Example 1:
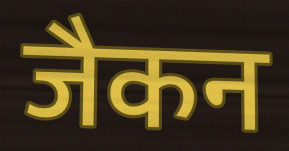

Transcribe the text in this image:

जैकन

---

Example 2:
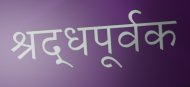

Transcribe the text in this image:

श्रद्धपूर्वक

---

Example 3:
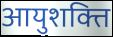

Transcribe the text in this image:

आयुशक्ति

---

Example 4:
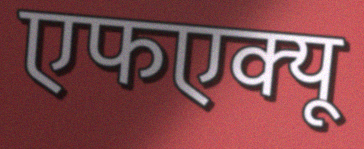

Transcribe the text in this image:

एफएक्यू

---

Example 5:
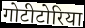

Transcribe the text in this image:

गोटीटोरिया